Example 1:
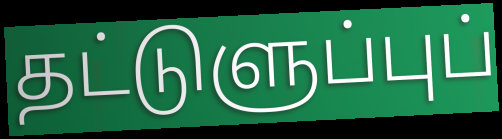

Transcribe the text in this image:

தட்டுளுப்புப்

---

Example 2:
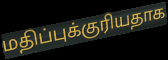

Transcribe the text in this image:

மதிப்புக்குரியதாக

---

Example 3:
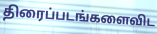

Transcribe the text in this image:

திரைப்படங்களைவிட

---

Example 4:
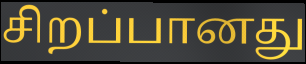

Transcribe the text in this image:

சிறப்பானது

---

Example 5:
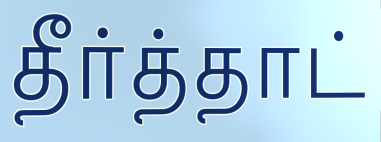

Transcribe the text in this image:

தீர்த்தாட்